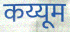
कय्यूम